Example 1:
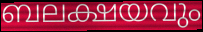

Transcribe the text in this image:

ബലക്ഷയവും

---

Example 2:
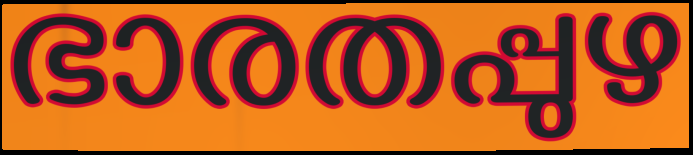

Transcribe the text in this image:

ഭാരതപ്പുഴ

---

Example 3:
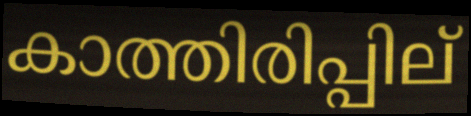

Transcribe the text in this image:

കാത്തിരിപ്പില്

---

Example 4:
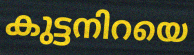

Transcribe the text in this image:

കുട്ടനിറയെ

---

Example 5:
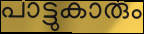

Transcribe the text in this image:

പാട്ടുകാരും